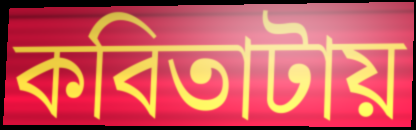
কবিতাটায়